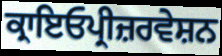
ਕ੍ਰਾਇਓਪ੍ਰੀਜ਼ਰਵੇਸ਼ਨ